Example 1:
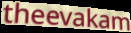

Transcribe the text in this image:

theevakam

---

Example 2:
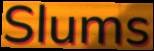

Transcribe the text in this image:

Slums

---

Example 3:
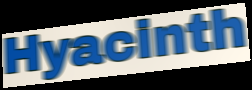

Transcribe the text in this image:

Hyacinth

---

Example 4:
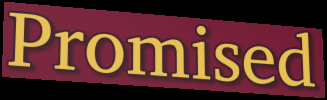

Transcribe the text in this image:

Promised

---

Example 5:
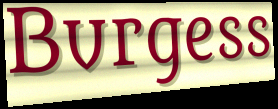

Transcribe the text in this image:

Burgess